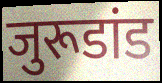
जुरूडांड